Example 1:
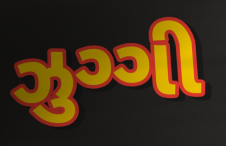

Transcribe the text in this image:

ઝુગ્ગી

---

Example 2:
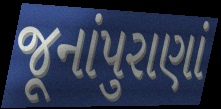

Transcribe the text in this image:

જૂનાંપુરાણાં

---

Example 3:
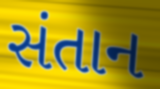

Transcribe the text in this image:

સંતાન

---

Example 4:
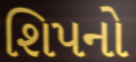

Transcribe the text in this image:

શિપનો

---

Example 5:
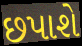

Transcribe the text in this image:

છપાશે